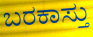
ಬರಕಾಸ್ತು